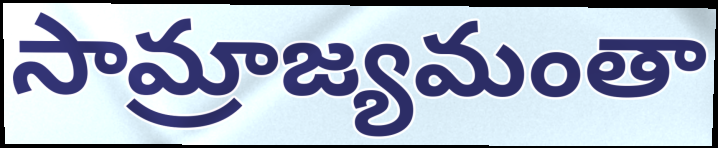
సామ్రాజ్యమంతా